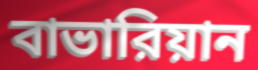
বাভারিয়ান